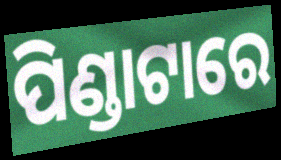
ପିଣ୍ଡାଟାରେ